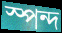
স্পন্দ